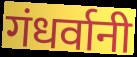
गंधर्वानी